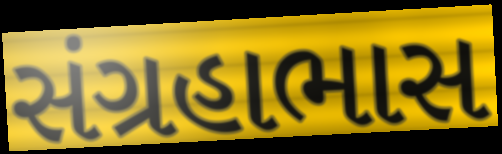
સંગ્રહાભાસ